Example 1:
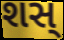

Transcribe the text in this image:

શસ્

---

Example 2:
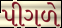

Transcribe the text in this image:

પીગળે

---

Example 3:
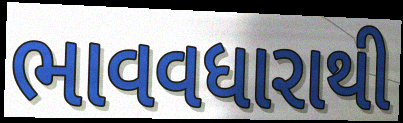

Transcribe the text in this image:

ભાવવધારાથી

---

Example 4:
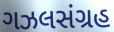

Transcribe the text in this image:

ગઝલસંગ્રહ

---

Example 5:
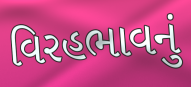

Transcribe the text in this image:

વિરહભાવનું